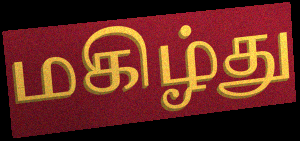
மகிழ்து